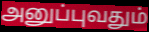
அனுப்புவதும்